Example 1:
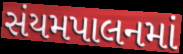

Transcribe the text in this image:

સંયમપાલનમાં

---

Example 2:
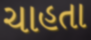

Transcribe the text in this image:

ચાહતા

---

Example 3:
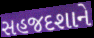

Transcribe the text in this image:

સહજદશાને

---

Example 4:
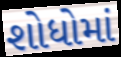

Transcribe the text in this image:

શોધોમાં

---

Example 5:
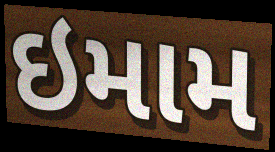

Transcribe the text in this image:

ઇમામ